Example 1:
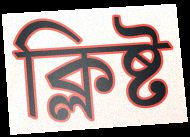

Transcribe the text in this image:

ক্লিষ্ট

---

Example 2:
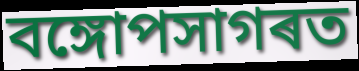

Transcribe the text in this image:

বঙ্গোপসাগৰত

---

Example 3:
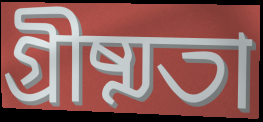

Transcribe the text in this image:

গ্ৰীষ্মতা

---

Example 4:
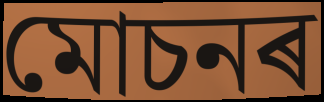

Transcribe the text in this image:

মোচনৰ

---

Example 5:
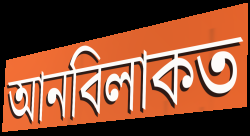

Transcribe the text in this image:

আনবিলাকত